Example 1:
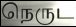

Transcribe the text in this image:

நெருட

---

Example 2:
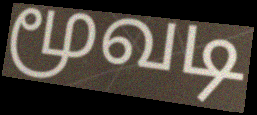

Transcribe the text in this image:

மூவடி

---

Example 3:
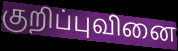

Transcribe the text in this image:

குறிப்புவினை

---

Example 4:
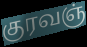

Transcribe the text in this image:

குரவஞ்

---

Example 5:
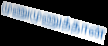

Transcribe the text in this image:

முணுமுணுத்தான்